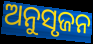
ଅନୁସୃଜନ